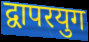
द्वापरयुग